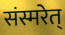
संस्मरेत्